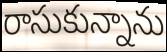
రాసుకున్నాను